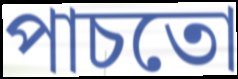
পাচতো